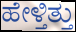
ಹೇಳ್ತಿತ್ತು